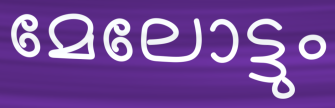
മേലോട്ടും